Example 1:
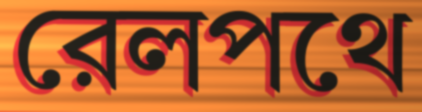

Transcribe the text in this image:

রেলপথে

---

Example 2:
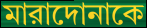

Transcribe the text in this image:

মারাদোনাকে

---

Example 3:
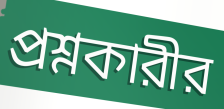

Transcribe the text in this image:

প্রশ্নকারীর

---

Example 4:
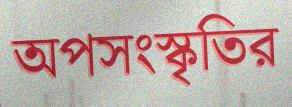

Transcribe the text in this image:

অপসংস্কৃতির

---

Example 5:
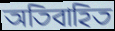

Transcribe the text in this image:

অতিবাহিত